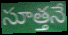
సూత్తనే